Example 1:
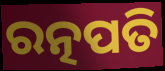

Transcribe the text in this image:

ରତ୍ନପତି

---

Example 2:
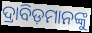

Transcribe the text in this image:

ଦ୍ରାବିଡ଼ମାନଙ୍କୁ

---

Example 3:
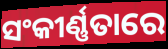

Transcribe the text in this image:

ସଂକୀର୍ଣ୍ଣତାରେ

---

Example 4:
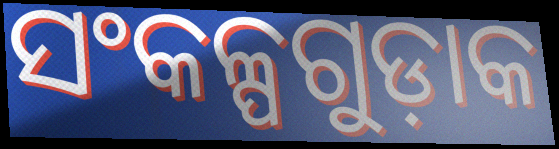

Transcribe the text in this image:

ସଂକଳ୍ପଗୁଡ଼ାକ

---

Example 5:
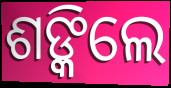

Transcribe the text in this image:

ଶଙ୍କିଲେ